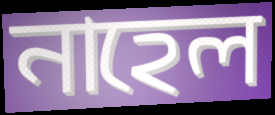
নাহেল